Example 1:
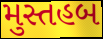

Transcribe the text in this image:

મુસ્તહબ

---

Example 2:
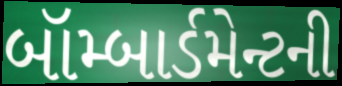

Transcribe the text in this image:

બૉમ્બાર્ડમેન્ટની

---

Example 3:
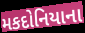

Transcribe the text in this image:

મકદોનિયાના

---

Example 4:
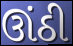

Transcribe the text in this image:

ઊંઠી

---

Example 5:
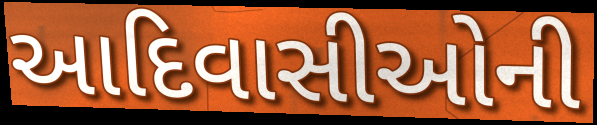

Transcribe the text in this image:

આદિવાસીઓની